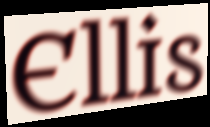
Ellis